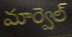
మార్వెల్